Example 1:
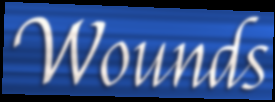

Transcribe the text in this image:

Wounds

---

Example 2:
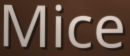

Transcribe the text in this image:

Mice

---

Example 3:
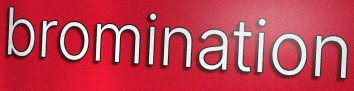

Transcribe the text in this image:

bromination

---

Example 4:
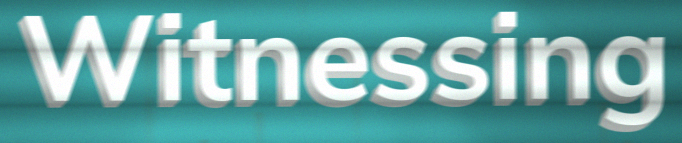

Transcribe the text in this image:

Witnessing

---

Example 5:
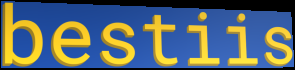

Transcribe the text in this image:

bestiis